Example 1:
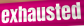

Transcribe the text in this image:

exhausted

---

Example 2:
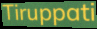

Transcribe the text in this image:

Tiruppati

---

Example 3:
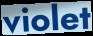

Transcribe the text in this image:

violet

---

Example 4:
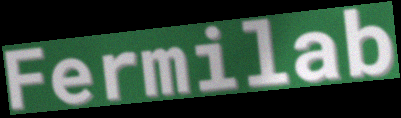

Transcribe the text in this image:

Fermilab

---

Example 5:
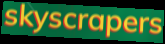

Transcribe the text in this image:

skyscrapers